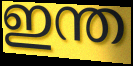
ഇന്ത